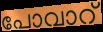
പോവാറ്